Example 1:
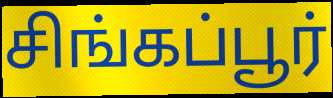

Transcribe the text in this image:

சிங்கப்பூர்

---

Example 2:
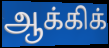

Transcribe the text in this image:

ஆக்கிக்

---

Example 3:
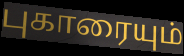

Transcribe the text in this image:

புகாரையும்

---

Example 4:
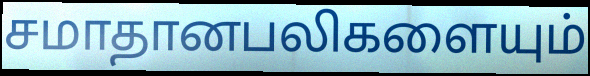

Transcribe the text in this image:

சமாதானபலிகளையும்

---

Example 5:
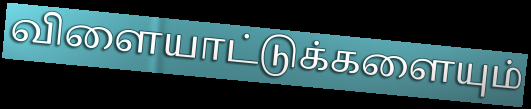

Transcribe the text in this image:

விளையாட்டுக்களையும்